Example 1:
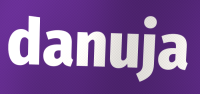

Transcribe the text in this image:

danuja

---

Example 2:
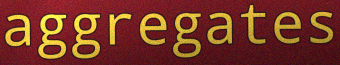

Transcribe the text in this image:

aggregates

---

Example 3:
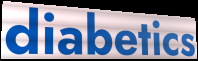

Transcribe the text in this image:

diabetics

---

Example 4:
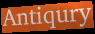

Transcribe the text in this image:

Antiqury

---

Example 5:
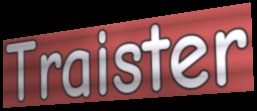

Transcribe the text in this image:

Traister